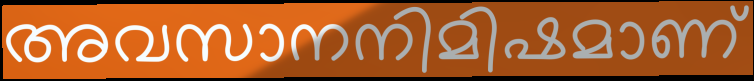
അവസാനനിമിഷമാണ്